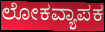
ಲೋಕವ್ಯಾಪಕ